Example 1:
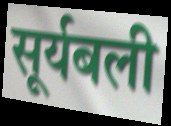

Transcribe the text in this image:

सूर्यबली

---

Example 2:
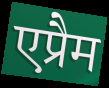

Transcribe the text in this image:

एप्रैम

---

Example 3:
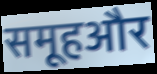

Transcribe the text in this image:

समूहऔर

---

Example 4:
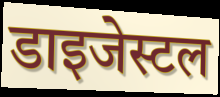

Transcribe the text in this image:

डाइजेस्टल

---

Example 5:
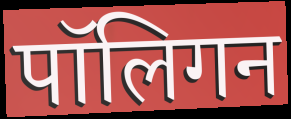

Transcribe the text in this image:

पॉलिगन